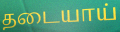
தடையாய்